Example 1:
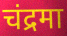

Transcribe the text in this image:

चंद्रमा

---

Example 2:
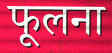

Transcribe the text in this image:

फूलना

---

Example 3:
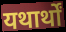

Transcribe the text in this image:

यथार्थों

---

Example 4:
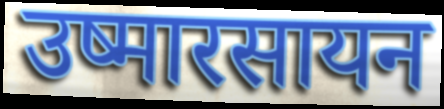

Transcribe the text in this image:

उष्मारसायन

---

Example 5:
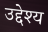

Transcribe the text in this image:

उद्देश्य